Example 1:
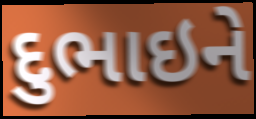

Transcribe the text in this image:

દુભાઇને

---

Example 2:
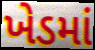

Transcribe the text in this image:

ખેડમાં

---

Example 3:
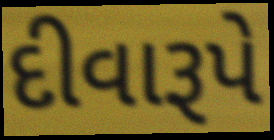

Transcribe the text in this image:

દીવારૂપે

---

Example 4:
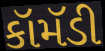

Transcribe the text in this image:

કૉમૅડી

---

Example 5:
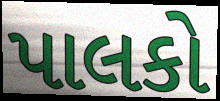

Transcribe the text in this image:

પાલકો